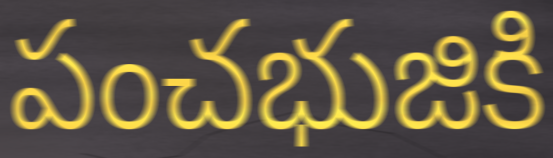
పంచభుజికి